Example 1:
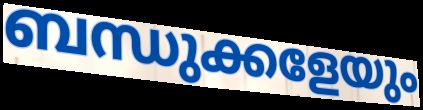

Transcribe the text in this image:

ബന്ധുക്കളേയും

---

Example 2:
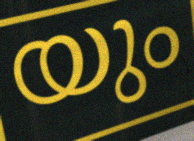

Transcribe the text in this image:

യും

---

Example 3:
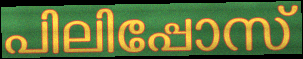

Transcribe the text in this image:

പിലിപ്പോസ്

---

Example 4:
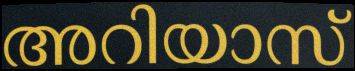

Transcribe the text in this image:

അറിയാസ്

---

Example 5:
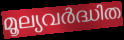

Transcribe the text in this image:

മൂല്യവർദ്ധിത